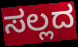
ಸಲ್ಲದ